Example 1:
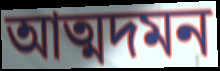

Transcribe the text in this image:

আত্মদমন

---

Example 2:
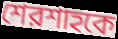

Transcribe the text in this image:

শেরশাহকে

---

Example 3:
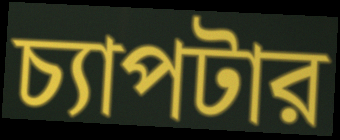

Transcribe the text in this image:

চ্যাপটার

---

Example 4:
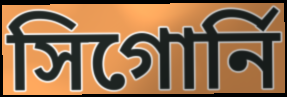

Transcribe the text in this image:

সিগোর্নি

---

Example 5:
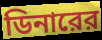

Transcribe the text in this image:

ডিনারের